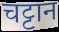
चट्टान